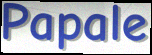
Papale